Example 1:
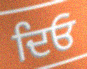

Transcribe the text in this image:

ਦਿਓ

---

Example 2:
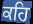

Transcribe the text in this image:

ਕਹਿ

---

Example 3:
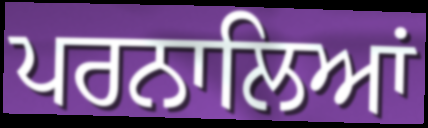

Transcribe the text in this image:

ਪਰਨਾਲਿਆਂ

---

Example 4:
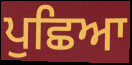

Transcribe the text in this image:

ਪੁਛਿਆ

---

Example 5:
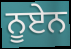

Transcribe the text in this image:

ਨੂਏਨ